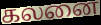
கலனை